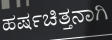
ಹರ್ಷಚಿತ್ತನಾಗಿ